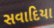
સવાદિયા